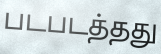
படபடத்தது